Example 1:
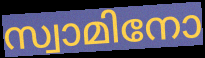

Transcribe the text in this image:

സ്വാമിനോ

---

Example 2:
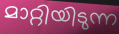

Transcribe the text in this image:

മാറ്റിയിടുന്ന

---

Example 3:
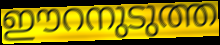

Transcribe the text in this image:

ഈറനുടുത്ത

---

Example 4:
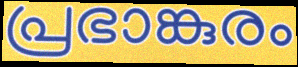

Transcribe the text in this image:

പ്രഭാങ്കുരം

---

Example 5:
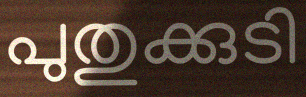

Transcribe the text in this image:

പുതുക്കുടി